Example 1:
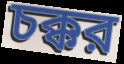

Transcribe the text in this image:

চক্কর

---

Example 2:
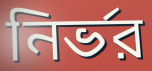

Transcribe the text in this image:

নির্ভর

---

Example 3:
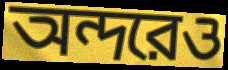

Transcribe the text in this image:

অন্দরেও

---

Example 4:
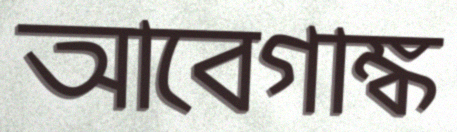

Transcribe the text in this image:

আবেগাঙ্ক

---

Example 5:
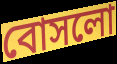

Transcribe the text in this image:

বোসলো